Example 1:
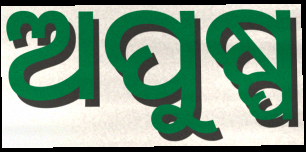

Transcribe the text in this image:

ଅପୁଷ୍ପ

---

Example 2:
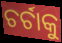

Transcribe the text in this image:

ଚର୍ଚାକୁ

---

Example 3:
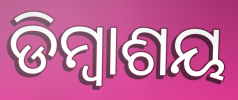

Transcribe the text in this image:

ଡିମ୍ବାଶୟ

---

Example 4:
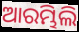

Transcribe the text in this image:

ଆରମ୍ଭିଲି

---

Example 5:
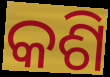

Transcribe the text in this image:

କଶି